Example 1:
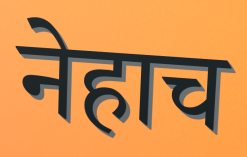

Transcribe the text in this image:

नेहाच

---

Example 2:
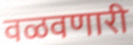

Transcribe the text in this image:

वळवणारी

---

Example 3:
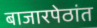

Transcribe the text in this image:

बाजारपेठांत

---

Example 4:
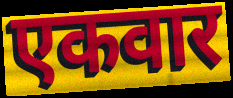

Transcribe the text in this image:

एकवार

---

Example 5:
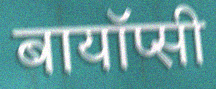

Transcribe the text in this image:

बायॉप्सी